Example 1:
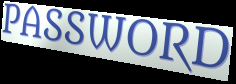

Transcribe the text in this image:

PASSWORD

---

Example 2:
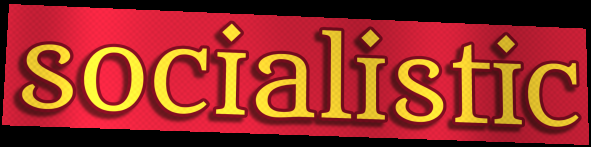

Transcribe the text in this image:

socialistic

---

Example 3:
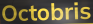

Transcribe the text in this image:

Octobris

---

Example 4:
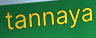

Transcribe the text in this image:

tannaya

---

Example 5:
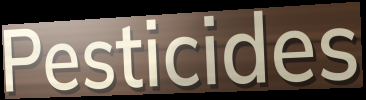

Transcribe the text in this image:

Pesticides